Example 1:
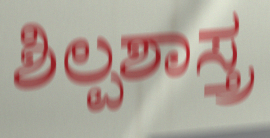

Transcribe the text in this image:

ಶಿಲ್ಪಶಾಸ್ತ್ರ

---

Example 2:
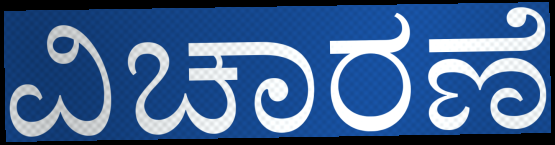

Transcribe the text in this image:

ವಿಚಾರಣೆ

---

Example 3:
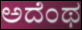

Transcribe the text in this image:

ಅದೆಂಥ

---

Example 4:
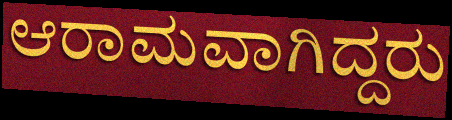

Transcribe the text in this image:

ಆರಾಮವಾಗಿದ್ದರು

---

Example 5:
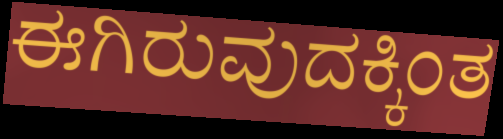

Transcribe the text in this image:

ಈಗಿರುವುದಕ್ಕಿಂತ